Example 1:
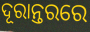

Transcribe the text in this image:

ଦୂରାନ୍ତରରେ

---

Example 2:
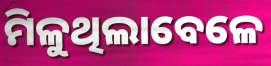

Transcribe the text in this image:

ମିଳୁଥିଲାବେଳେ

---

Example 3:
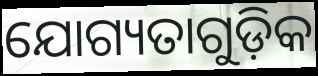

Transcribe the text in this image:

ଯୋଗ୍ୟତାଗୁଡ଼ିକ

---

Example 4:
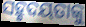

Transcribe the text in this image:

ସହୃଦୟତାକୁ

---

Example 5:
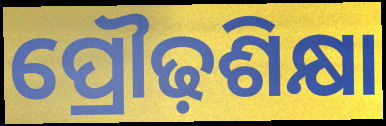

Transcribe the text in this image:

ପ୍ରୌଢ଼ଶିକ୍ଷା